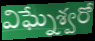
విఘ్నేశ్వరో